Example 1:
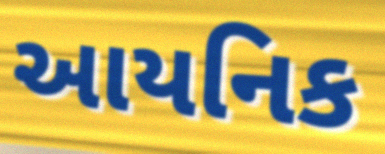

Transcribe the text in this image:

આયનિક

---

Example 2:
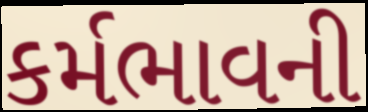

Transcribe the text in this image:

કર્મભાવની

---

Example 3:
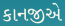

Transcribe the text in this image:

કાનજીએ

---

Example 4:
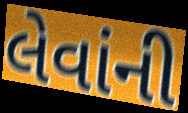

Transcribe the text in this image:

લેવાંની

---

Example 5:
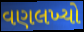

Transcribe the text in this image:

વણલખ્યો